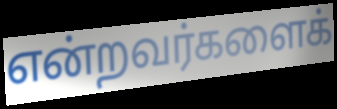
என்றவர்களைக்